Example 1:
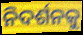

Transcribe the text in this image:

ନିଦର୍ଶନକୁ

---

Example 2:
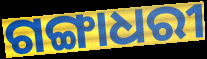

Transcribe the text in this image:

ଗଙ୍ଗାଧରୀ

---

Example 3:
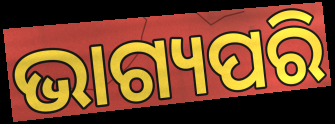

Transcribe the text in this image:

ଭାଗ୍ୟପରି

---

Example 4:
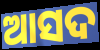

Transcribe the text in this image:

ଆସଦ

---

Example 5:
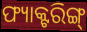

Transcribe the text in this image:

ଫ୍ୟାକ୍ଟରିଙ୍ଗ୍